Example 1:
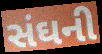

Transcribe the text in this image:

સંઘની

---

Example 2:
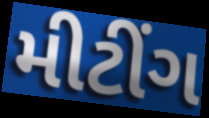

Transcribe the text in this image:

મીટીંગ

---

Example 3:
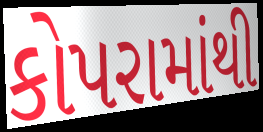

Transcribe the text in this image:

કોપરામાંથી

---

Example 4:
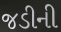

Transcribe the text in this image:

જડીની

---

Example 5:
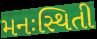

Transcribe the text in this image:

મનઃસ્થિતી